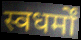
स्वधर्मों